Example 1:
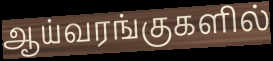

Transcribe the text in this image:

ஆய்வரங்குகளில்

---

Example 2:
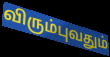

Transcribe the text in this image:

விரும்புவதும்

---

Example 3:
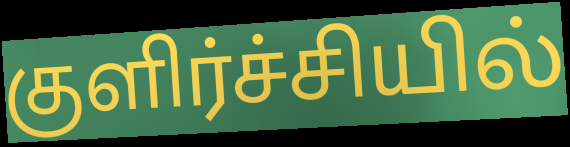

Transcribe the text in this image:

குளிர்ச்சியில்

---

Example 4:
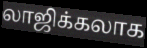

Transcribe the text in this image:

லாஜிக்கலாக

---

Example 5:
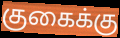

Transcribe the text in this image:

குகைக்கு